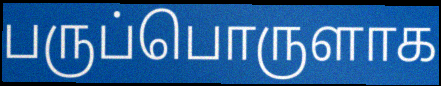
பருப்பொருளாக